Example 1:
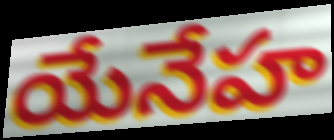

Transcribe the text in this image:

యేనేహ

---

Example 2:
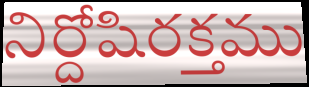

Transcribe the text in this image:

నిర్దోషిరక్తము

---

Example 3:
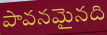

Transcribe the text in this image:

పావనమైనది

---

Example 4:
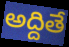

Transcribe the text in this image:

అద్దితే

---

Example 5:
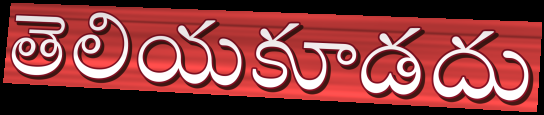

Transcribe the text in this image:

తెలియకూడదు